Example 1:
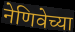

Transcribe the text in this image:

नेणिवेच्या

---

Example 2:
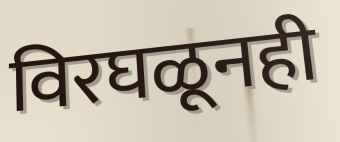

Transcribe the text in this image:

विरघळूनही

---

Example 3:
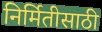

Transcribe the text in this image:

निर्मितीसाठी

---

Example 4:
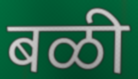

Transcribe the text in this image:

बळी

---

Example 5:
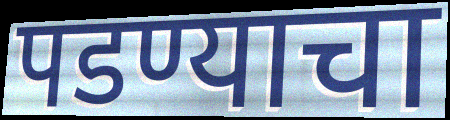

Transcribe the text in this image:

पडण्याचा